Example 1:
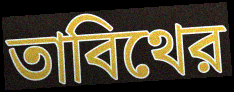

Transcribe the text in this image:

তাবিথের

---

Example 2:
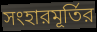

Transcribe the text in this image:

সংহারমূর্তির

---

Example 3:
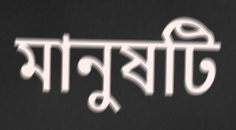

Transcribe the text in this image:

মানুষটি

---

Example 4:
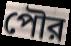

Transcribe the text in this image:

পৌর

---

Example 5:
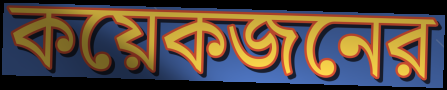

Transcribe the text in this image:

কয়েকজনের